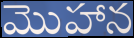
మొహాన